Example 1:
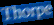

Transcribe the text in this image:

Thorpe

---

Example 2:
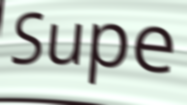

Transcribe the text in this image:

Supe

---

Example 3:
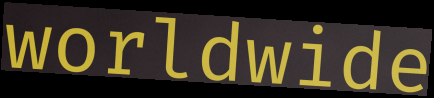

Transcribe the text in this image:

worldwide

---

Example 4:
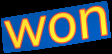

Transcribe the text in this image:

won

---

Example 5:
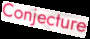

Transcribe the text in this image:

Conjecture